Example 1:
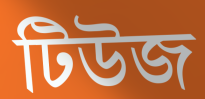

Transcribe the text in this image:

টিউজ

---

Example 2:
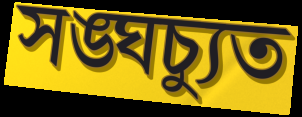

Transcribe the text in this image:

সঙ্ঘচ্যুত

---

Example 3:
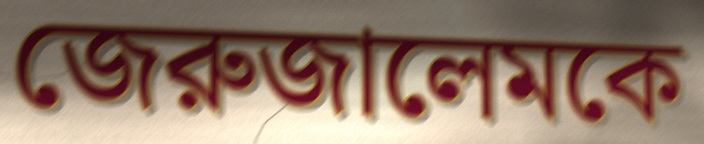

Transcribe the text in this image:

জেরুজালেমকে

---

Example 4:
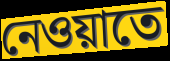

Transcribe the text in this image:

নেওয়াতে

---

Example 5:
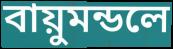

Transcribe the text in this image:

বায়ুমন্ডলে